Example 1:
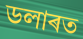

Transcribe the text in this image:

ডলাৰত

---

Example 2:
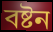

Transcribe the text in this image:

বষ্টন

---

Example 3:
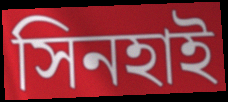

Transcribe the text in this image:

সিনহাই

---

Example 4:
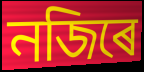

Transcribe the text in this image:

নজিৰে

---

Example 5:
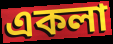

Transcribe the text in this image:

একলা